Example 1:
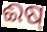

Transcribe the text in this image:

ଈଷ୍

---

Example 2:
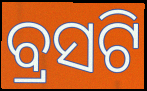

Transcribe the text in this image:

ବ୍ରସଟି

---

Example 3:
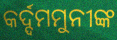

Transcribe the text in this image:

କର୍ଦ୍ଦମମୁନୀଙ୍କ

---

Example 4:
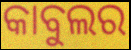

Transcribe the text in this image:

କାବୁଲର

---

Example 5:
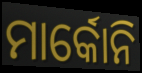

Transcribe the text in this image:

ମାର୍କୋନି